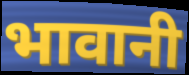
भावानी